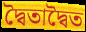
দ্বৈতাদ্বৈত